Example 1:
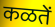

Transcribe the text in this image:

कळतें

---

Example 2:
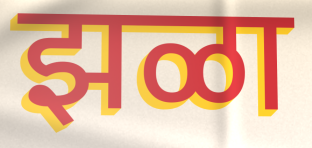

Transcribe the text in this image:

झळा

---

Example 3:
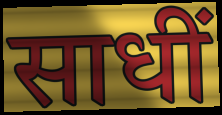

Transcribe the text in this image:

साधीं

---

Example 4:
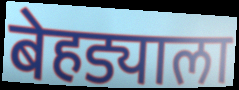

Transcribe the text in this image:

बेहड्याला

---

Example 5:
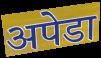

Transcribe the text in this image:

अपेडा